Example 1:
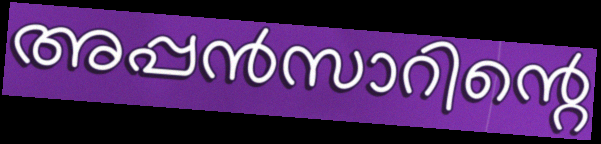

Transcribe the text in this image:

അപ്പൻസാറിന്റെ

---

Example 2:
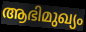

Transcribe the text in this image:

ആഭിമുഖ്യം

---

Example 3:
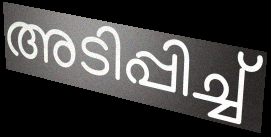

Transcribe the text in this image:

അടിപ്പിച്ച്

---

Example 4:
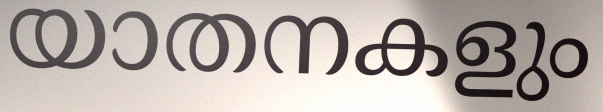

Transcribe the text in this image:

യാതനകളും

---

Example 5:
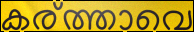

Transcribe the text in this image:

കര്ത്താവെ